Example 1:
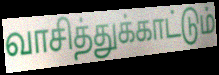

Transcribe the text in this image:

வாசித்துக்காட்டும்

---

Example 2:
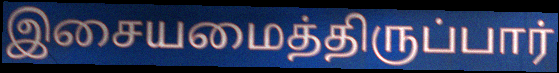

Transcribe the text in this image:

இசையமைத்திருப்பார்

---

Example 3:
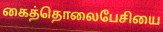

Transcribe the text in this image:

கைத்தொலைபேசியை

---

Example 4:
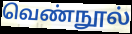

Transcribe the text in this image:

வெண்நூல்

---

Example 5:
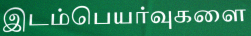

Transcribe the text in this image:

இடம்பெயர்வுகளை